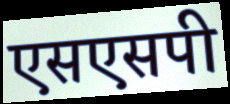
एसएसपी